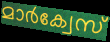
മാർക്വേസ്